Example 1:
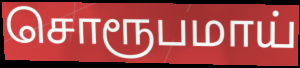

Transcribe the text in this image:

சொரூபமாய்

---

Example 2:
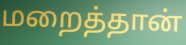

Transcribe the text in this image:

மறைத்தான்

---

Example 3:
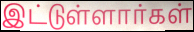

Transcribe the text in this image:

இட்டுள்ளார்கள்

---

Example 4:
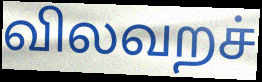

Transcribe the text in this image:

விலவறச்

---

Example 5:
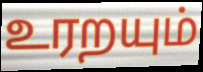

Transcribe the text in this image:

உரறயும்